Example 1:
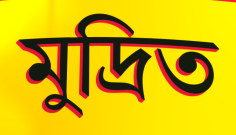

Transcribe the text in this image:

মুদ্ৰিত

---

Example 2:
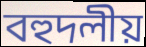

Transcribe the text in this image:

বহুদলীয়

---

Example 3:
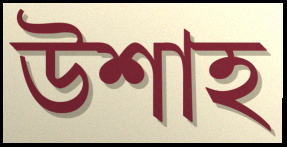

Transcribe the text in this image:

উশাহ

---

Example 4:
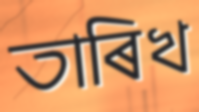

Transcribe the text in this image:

তাৰিখ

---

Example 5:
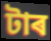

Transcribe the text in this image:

টাৰ